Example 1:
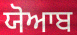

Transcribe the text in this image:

ਯੋਆਬ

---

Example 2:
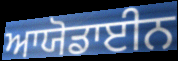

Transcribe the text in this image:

ਆਯੋਡਾਈਨ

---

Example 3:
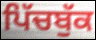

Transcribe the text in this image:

ਪਿੱਚਬੁੱਕ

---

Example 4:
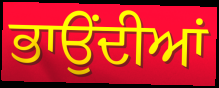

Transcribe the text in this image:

ਭਾਉਂਦੀਆਂ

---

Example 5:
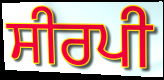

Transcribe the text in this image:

ਸੀਰਪੀ